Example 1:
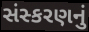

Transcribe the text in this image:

સંસ્કરણનું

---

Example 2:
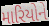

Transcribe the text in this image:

મારિયોને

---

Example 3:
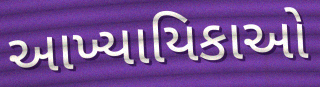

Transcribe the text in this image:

આખ્યાયિકાઓ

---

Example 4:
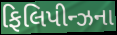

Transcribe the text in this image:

ફિલિપીન્ઝના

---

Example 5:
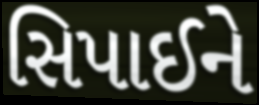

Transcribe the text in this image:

સિપાઈને